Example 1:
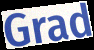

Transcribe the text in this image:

Grad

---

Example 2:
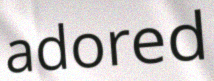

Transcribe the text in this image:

adored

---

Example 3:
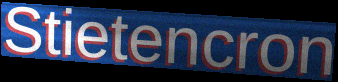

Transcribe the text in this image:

Stietencron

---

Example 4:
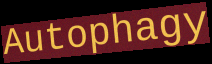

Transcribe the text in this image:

Autophagy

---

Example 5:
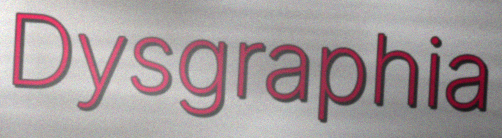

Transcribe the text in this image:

Dysgraphia